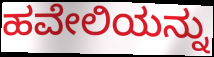
ಹವೇಲಿಯನ್ನು